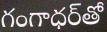
గంగాధర్‌తో